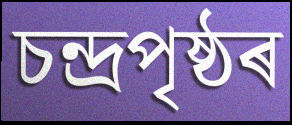
চন্দ্ৰপৃষ্ঠৰ